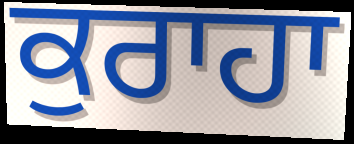
ਕੁਰਾਹਾ